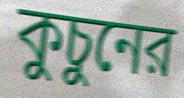
কুচুনের